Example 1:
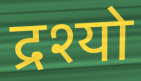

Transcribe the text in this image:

द्रश्यो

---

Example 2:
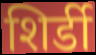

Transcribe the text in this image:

शिर्डी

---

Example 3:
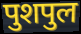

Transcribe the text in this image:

पुशपुल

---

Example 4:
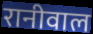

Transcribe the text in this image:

रानीवाल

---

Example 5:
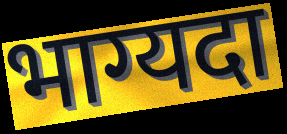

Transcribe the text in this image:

भाग्यदा